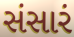
સંસારં